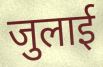
जुलाई